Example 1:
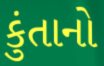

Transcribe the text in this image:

કુંતાનો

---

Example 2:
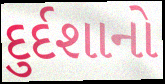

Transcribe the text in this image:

દુર્દશાનો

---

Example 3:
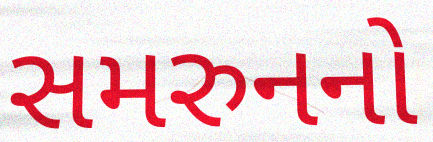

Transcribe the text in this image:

સમરુનનો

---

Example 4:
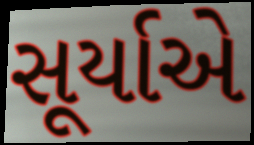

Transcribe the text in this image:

સૂર્યાએ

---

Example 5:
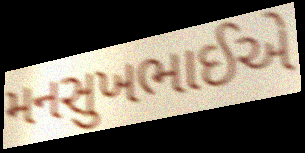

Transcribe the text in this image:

મનસુખભાઈએ